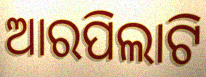
ଆରପିଲାଟି